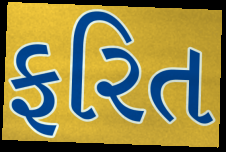
ફરિત